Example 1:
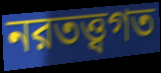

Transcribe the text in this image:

নরতত্ত্বগত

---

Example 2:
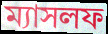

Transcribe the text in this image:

ম্যাসলফ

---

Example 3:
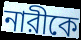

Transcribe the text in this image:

নারীকে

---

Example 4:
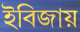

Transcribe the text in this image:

ইবিজায়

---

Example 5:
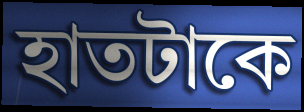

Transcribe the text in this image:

হাতটাকে